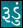
રૂડું